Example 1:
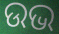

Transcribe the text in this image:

ଉଭ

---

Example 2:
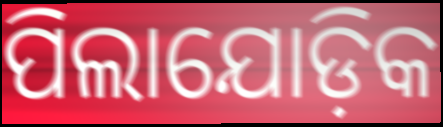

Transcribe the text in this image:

ପିଲାଯୋଡ଼ିକ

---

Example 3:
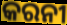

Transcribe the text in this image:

କରନୀ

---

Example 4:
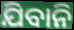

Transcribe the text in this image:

ଯିବାନି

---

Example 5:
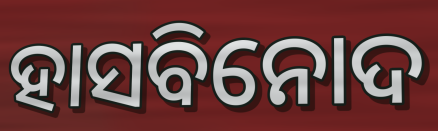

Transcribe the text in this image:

ହାସବିନୋଦ